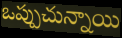
ఒప్పుచున్నాయి